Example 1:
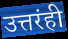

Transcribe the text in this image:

उत्तरंही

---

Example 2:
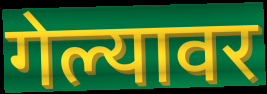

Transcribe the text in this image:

गेल्यावर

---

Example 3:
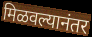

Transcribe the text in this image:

मिळवल्यानंतर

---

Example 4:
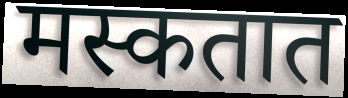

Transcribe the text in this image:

मस्कतात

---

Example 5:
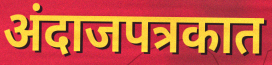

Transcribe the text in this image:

अंदाजपत्रकात